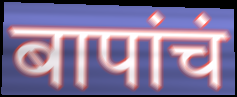
बापांचं